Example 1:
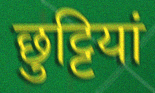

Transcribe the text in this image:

छुट्टियां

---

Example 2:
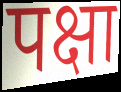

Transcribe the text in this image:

पक्षा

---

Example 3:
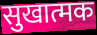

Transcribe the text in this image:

सुखात्मक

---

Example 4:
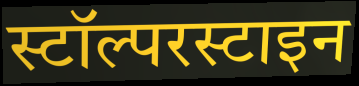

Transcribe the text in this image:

स्टॉल्परस्टाइन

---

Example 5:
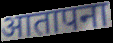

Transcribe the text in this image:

आतापना